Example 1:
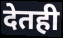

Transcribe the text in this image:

देतही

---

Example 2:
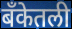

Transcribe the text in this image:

बँकेतली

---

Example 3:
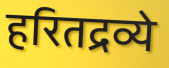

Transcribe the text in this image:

हरितद्रव्ये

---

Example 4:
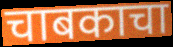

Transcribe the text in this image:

चाबकाचा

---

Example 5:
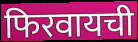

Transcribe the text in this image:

फिरवायची